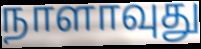
நாளாவுது